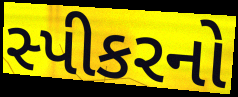
સ્પીકરનો